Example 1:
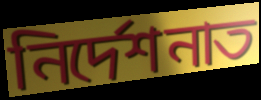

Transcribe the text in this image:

নিৰ্দেশনাত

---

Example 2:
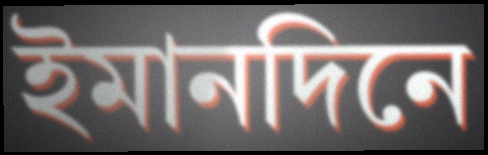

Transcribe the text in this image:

ইমানদিনে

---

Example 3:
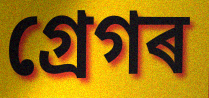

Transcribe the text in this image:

গ্ৰেগৰ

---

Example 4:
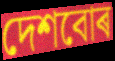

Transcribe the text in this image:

দেশবোৰ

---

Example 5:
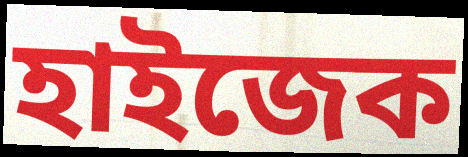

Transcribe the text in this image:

হাইজেক